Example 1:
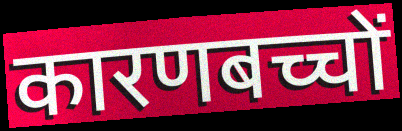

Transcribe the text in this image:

कारणबच्चों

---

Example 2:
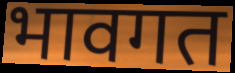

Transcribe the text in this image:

भावगत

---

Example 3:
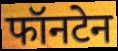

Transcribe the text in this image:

फॉनटेन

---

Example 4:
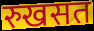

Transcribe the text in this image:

रुखसत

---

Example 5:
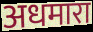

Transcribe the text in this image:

अधमारा